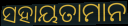
ସହାୟତାମାନ